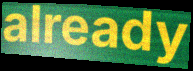
already